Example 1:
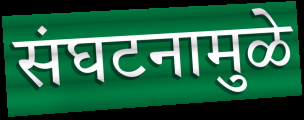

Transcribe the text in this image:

संघटनामुळे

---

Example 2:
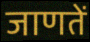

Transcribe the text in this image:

जाणतें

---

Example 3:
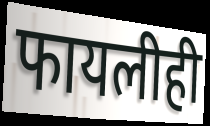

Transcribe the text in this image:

फायलीही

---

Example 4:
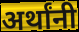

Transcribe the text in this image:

अर्थांनी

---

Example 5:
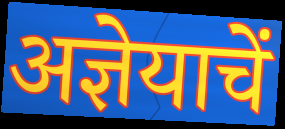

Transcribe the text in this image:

अज्ञेयाचें